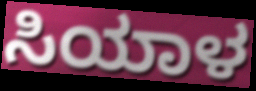
ಸಿಯಾಳ